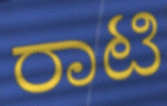
ರಾಟಿ